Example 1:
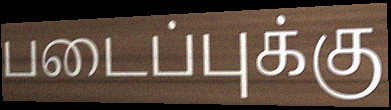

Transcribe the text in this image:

படைப்புக்கு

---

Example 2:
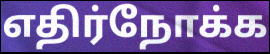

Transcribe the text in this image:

எதிர்நோக்க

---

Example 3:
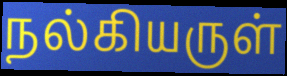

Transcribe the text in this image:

நல்கியருள்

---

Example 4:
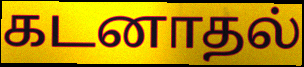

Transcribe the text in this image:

கடனாதல்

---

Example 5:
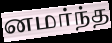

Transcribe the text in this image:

னமர்ந்த